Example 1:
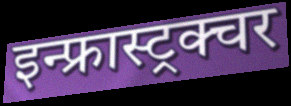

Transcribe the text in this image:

इन्फ्रास्ट्रक्‍चर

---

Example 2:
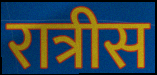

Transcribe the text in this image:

रात्रीस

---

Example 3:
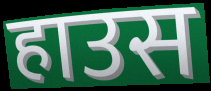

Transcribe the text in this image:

हाउस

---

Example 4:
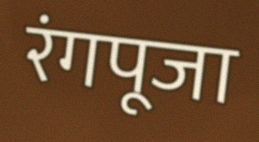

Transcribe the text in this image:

रंगपूजा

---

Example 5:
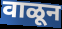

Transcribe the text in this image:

वाळून